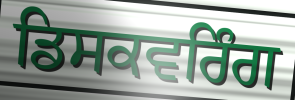
ਡਿਸਕਵਰਿੰਗ